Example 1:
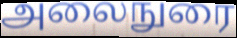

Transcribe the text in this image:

அலைநுரை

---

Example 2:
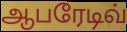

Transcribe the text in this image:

ஆபரேடிவ்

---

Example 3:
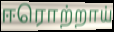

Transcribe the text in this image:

ஈரொற்றாய்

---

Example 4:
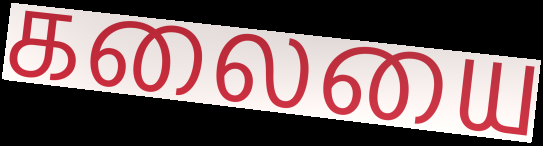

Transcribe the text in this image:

கலையை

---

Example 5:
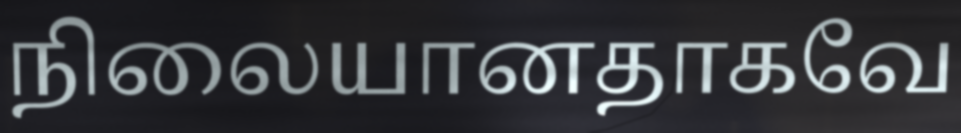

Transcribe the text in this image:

நிலையானதாகவே